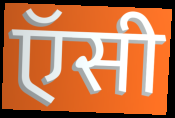
ऍसी